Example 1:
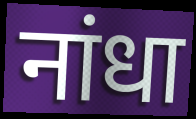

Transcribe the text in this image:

नांधा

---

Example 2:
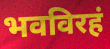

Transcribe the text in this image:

भवविरहं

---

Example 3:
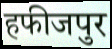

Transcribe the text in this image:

हफीजपुर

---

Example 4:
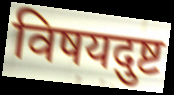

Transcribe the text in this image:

विषयदुष्ट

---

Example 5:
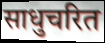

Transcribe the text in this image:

साधुचरित